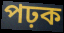
পঢ়ক